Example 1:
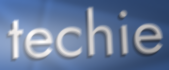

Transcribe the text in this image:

techie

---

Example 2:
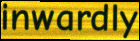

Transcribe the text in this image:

inwardly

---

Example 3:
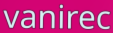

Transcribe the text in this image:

vanirec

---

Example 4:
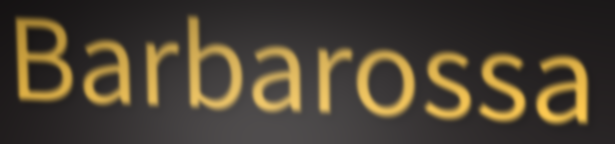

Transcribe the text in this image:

Barbarossa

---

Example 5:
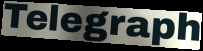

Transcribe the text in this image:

Telegraph